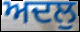
ਅਦਲੁ